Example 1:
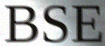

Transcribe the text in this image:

BSE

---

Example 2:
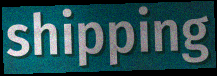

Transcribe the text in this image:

shipping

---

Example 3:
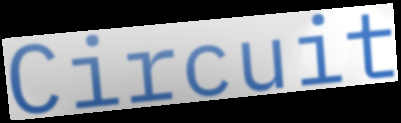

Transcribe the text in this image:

Circuit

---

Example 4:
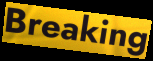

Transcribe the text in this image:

Breaking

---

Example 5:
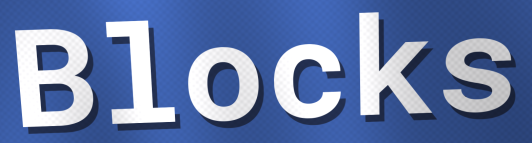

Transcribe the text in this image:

Blocks